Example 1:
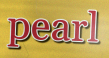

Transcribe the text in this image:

pearl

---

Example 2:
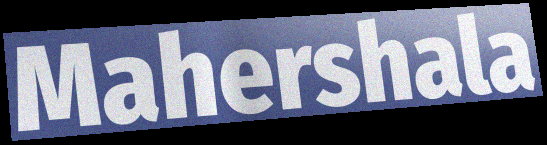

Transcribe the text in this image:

Mahershala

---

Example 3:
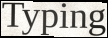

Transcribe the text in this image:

Typing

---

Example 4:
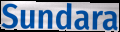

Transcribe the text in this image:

Sundara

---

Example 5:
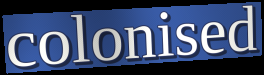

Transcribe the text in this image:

colonised